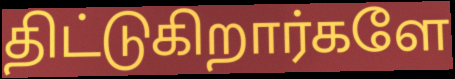
திட்டுகிறார்களே